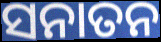
ସନାତନ